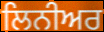
ਲਿਨੀਅਰ